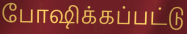
போஷிக்கப்பட்டு